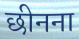
छीनना